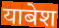
याबेश